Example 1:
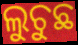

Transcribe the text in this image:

ଲୁଚୁଛ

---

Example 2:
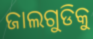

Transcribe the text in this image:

ଜାଲଗୁଡିକୁ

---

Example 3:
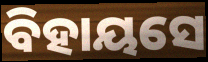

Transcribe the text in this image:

ବିହାୟସେ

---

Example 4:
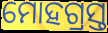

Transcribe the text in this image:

ମୋହଗ୍ରସ୍ତ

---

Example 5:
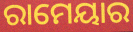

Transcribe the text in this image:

ରାମେୟାର